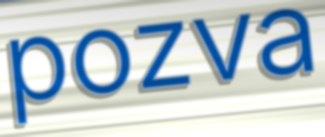
pozva